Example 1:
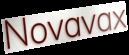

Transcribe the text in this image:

Novavax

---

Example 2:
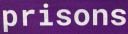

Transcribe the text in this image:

prisons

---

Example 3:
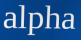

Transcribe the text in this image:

alpha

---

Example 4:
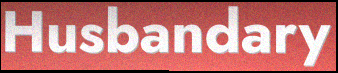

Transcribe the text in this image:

Husbandary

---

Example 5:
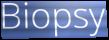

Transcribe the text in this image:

Biopsy